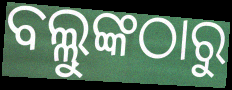
ବଲ୍ଲୁଙ୍କଠାରୁ